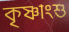
কৃষ্ণাংশু